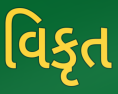
વિકૃત